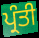
ਪ੍ਰੰਤੀ